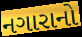
નગારાનો